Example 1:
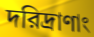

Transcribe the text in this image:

দরিদ্রাণাং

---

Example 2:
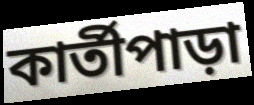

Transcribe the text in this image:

কার্তীপাড়া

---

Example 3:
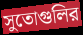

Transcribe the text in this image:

সুতোগুলির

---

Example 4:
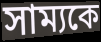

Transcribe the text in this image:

সাম্যকে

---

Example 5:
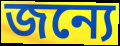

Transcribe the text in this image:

জন্যে